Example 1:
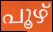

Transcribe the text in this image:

പൂഴ്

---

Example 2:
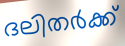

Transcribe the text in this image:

ദലിതർക്ക്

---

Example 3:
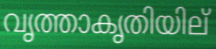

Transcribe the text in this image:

വൃത്താകൃതിയില്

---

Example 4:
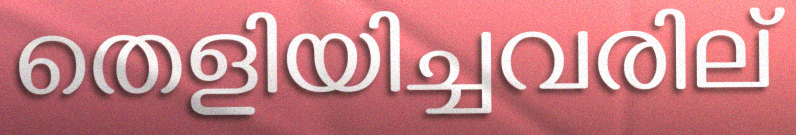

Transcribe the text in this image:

തെളിയിച്ചവരില്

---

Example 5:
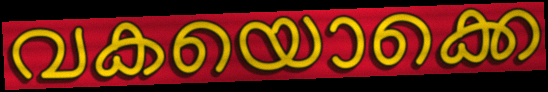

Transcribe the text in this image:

വകയൊക്കെ